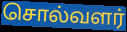
சொல்வளர்